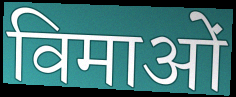
विमाओं